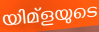
യിമ്ളയുടെ